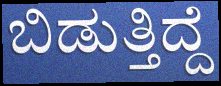
ಬಿಡುತ್ತಿದ್ದೆ